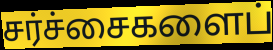
சர்ச்சைகளைப்